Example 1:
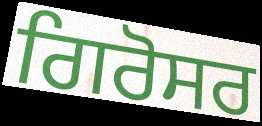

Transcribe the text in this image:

ਗਿਰੋਸਰ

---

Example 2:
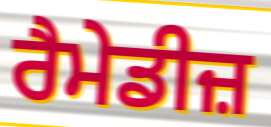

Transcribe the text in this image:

ਰੈਮੇਡੀਜ਼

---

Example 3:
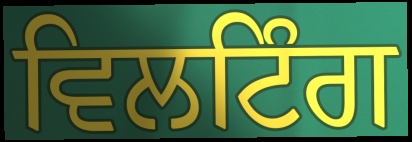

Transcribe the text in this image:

ਵਿਲਟਿੰਗ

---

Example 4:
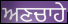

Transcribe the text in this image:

ਅਣਚਾਹੇ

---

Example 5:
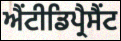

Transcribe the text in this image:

ਐਂਟੀਡਿਪ੍ਰੈਸੈਂਟ